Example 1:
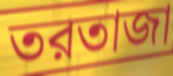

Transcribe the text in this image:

তরতাজা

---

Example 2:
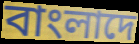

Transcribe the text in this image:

বাংলাদে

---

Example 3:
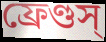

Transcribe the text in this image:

ফ্রেণ্ডস্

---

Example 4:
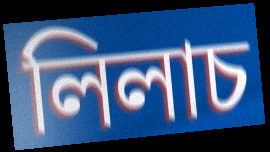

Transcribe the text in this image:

লিলাচ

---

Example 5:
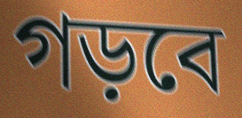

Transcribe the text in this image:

গড়বে